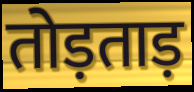
तोड़ताड़